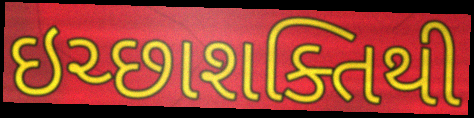
ઇચ્છાશક્તિથી